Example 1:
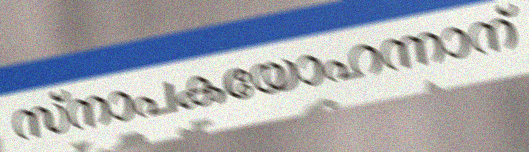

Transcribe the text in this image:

സ്നാപകയോഹന്നാന്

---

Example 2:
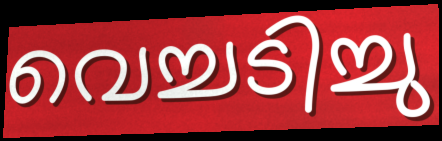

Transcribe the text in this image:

വെച്ചടിച്ചു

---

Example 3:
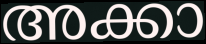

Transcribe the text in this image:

അക്കാ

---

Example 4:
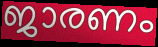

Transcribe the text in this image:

ജാരണം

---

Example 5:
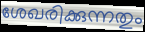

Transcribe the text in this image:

ശേഖരിക്കുന്നതും